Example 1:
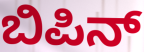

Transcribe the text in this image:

ಬಿಪಿನ್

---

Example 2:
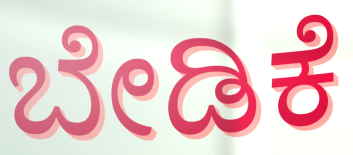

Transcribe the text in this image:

ಬೇಡಿಕೆ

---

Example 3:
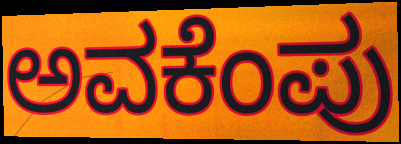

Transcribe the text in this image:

ಅವಕೆಂಪು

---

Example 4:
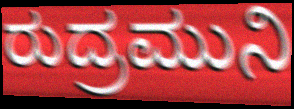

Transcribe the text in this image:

ರುದ್ರಮುನಿ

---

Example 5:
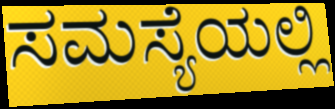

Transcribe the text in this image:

ಸಮಸ್ಯೆಯಲ್ಲಿ